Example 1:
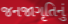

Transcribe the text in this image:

જનજાગૃતિનું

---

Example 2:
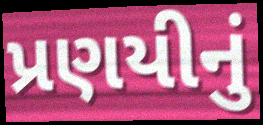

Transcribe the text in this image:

પ્રણયીનું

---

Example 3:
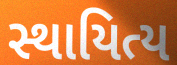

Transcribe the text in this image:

સ્થાયિત્ય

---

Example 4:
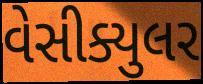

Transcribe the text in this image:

વેસીક્યુલર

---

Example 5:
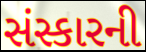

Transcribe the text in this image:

સંસ્કારની